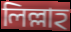
লিল্লাহ